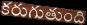
కరుగుతుంది